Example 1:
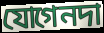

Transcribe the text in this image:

যোগেনদা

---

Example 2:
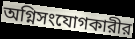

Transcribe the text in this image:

অগ্নিসংযোগকারীর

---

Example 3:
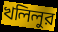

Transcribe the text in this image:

খলিলুর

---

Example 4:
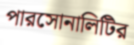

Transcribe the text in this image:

পারসোনালিটির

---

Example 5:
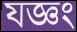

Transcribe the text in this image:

যজ্ঞং